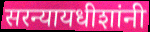
सरन्यायधीशांनी